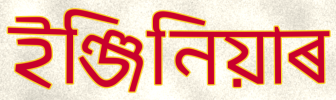
ইঞ্জিনিয়াৰ